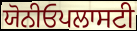
ਯੋਨੀਓਪਲਾਸਟੀ